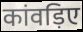
कांवड़िए